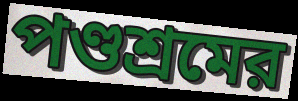
পণ্ডশ্রমের